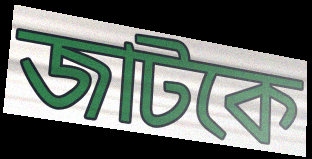
জাটকে